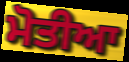
ਮੋਤੀਆ